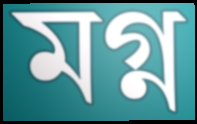
মগ্ন